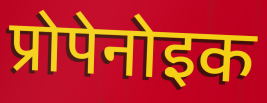
प्रोपेनोइक